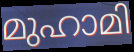
മുഹാമി